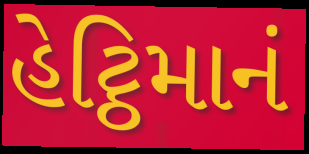
હેટ્ઠિમાનં